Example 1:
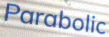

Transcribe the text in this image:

Parabolic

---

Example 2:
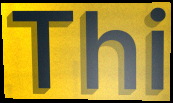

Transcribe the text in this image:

Thi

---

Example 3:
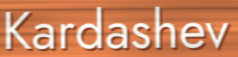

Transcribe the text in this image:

Kardashev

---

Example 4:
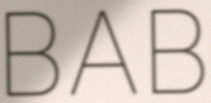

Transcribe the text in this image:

BAB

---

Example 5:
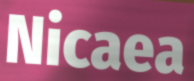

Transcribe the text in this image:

Nicaea